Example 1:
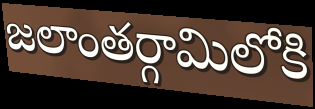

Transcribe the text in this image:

జలాంతర్గామిలోకి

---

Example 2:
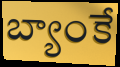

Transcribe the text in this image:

బ్యాంకే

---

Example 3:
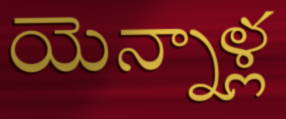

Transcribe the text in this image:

యెన్నాళ్ల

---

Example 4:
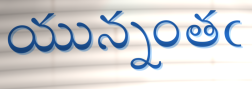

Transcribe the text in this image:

యున్నంతఁ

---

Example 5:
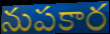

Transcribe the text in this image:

నుపకార